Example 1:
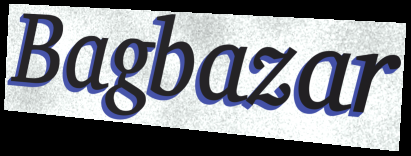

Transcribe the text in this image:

Bagbazar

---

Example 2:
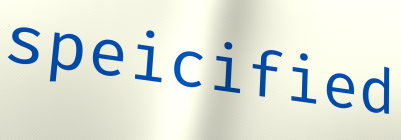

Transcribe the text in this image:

speicified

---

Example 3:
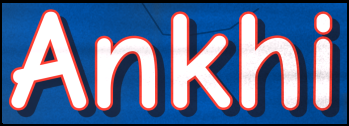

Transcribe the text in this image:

Ankhi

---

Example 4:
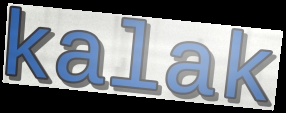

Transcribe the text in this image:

kalak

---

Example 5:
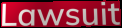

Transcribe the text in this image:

Lawsuit